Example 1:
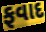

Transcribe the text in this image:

ફવાદ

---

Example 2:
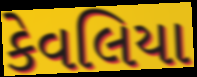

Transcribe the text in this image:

કેવલિયા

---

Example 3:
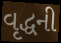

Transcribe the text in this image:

વૃદ્ધની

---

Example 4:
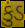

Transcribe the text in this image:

કુંડ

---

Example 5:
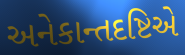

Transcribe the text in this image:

અનેકાન્તદષ્ટિએ